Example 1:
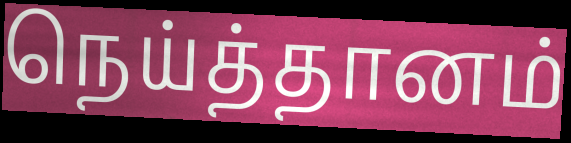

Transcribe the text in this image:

நெய்த்தானம்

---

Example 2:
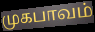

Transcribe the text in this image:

முகபாவம்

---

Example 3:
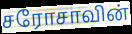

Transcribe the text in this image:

சரோசாவின்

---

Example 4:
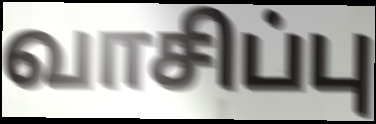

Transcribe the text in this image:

வாசிப்பு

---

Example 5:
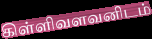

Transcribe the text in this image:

கிள்ளிவளவனிடம்